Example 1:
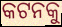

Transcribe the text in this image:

କଟନକୁ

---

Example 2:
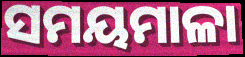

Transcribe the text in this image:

ସମୟମାଳା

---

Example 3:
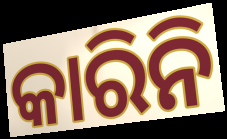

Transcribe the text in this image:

କାରିନି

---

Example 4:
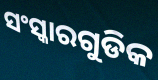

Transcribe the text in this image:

ସଂସ୍କାରଗୁଡିକ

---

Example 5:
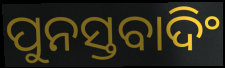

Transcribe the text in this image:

ପୁନସ୍ତବାଦିଂ